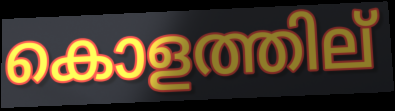
കൊളത്തില്